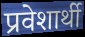
प्रवेशार्थी